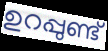
ഉറപ്പുണ്ട്